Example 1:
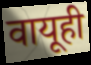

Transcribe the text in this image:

वायूही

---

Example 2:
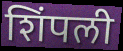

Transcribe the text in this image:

शिंपली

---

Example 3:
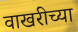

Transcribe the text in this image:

वाखरीच्या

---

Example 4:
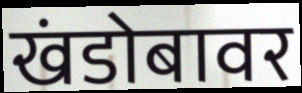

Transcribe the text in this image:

खंडोबावर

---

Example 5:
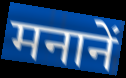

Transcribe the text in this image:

मनानें